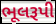
ભૂલરૂપી